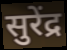
सुरेंद्र